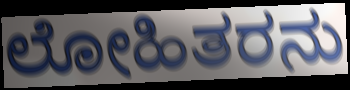
ಲೋಹಿತರನು